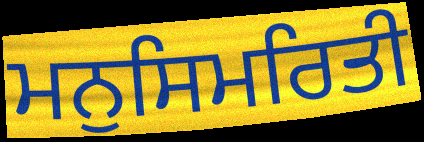
ਮਨੁਸਿਮਰਿਤੀ